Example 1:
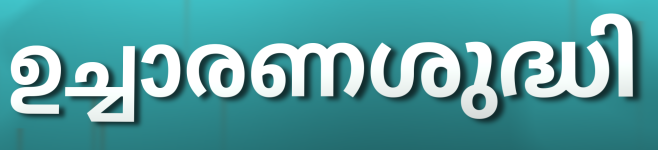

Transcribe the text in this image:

ഉച്ചാരണശുദ്ധി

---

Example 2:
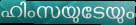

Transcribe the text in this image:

ഹിംസയുടേയും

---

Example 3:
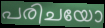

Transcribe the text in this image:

പരിചയോ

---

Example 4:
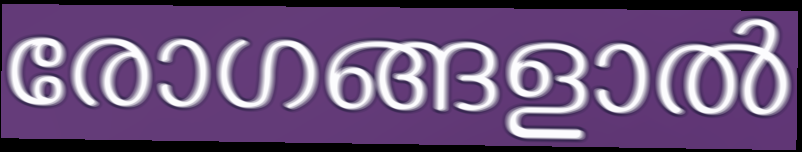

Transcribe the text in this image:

രോഗങ്ങളാൽ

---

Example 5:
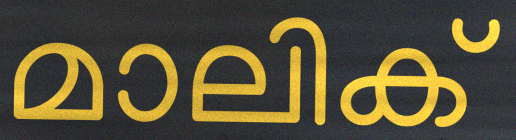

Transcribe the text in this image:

മാലിക്